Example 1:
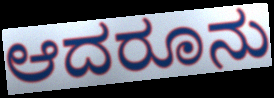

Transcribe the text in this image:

ಆದರೂನು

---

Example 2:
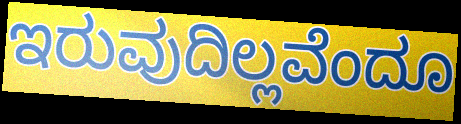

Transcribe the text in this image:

ಇರುವುದಿಲ್ಲವೆಂದೂ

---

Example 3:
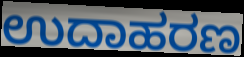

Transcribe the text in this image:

ಉದಾಹರಣ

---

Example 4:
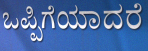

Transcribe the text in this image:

ಒಪ್ಪಿಗೆಯಾದರೆ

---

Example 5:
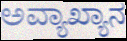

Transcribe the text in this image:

ಅವ್ಯಾಖ್ಯಾನ